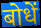
बोधें